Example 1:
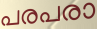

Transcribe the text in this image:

പരപരാ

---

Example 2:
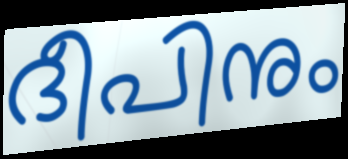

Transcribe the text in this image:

ദീപിനും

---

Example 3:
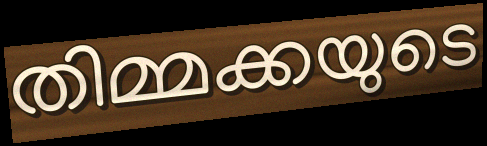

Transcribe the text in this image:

തിമ്മക്കയുടെ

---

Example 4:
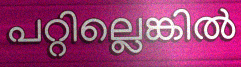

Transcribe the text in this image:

പറ്റില്ലെങ്കിൽ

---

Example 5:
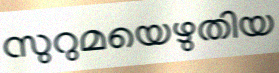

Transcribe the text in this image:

സുറുമയെഴുതിയ